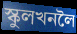
স্কুলখনলৈ